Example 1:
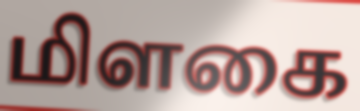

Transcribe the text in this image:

மிளகை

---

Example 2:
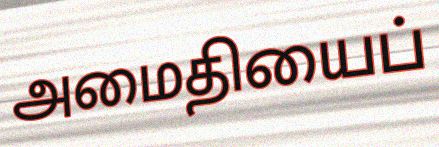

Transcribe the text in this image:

அமைதியைப்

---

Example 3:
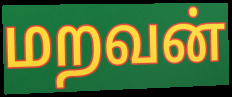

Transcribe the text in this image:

மறவன்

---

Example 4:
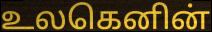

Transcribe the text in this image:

உலகெனின்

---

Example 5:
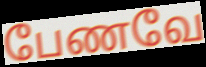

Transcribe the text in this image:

பேணவே